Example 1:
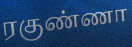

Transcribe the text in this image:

ரகுண்ணா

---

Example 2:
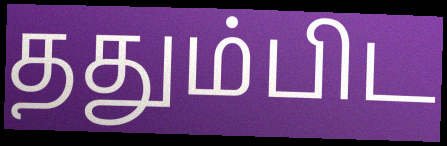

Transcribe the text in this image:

ததும்பிட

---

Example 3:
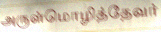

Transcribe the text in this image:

அருள்மொழித்தேவர்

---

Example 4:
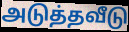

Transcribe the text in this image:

அடுத்தவீடு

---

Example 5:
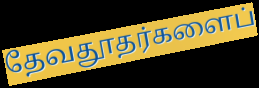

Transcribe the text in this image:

தேவதூதர்களைப்